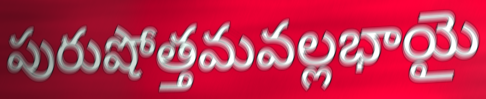
పురుషోత్తమవల్లభాయై